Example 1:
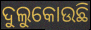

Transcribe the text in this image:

ଦୁଲୁକୋଉଛି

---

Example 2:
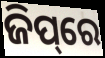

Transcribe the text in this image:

ଜିପ୍‌ରେ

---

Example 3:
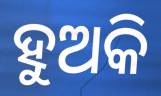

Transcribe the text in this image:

ହୁଅକି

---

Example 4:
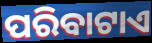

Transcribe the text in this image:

ପରିବାଟାଏ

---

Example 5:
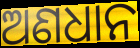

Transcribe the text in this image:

ଅଣଧାନ